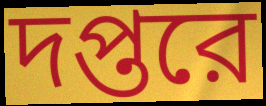
দপ্তরে